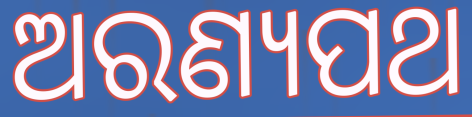
ଅରଣ୍ୟପଥ